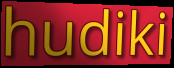
hudiki